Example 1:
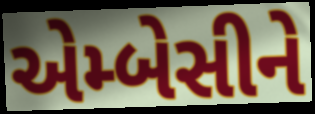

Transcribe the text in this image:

એમ્બેસીને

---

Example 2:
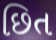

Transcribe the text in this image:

છિત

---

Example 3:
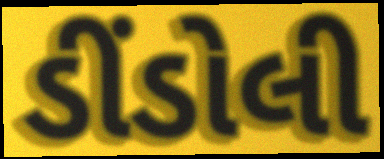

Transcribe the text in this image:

ડીંડોલી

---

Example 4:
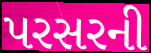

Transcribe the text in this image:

પરસરની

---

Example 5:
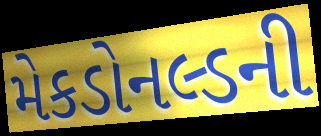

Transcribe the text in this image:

મેકડોનલ્ડની